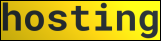
hosting